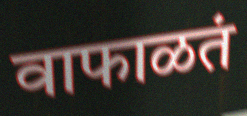
वाफाळतं